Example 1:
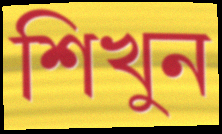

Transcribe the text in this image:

শিখুন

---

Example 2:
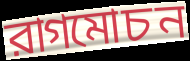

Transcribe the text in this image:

রাগমোচন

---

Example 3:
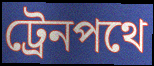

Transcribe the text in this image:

ট্রেনপথে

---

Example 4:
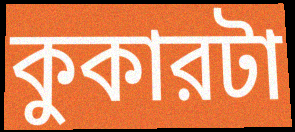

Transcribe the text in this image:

কুকারটা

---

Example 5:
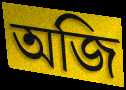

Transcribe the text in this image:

অজি